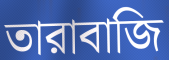
তারাবাজি